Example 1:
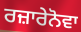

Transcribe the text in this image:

ਰਜ਼ਾਰੇਨੋਵਾ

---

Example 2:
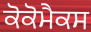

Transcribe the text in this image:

ਕੋਕੋਮੈਕਸ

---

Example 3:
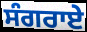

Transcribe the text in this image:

ਸੰਗਰਾਏ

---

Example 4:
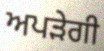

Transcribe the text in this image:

ਅਪੜੇਗੀ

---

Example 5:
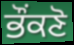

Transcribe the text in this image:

ਭੌਂਕਣੋ